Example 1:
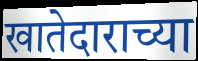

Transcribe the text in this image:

खातेदाराच्या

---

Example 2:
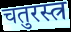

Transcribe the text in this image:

चतुरस्त्र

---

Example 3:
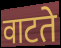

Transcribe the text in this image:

वाटते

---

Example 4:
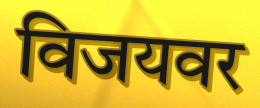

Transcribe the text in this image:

विजयवर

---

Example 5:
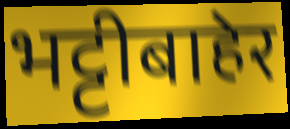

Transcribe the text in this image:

भट्टीबाहेर